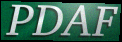
PDAF